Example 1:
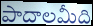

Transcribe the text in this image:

పాదాలమీది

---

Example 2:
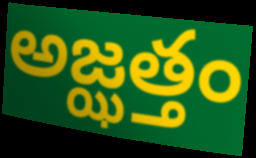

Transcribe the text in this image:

అజ్ఝత్తం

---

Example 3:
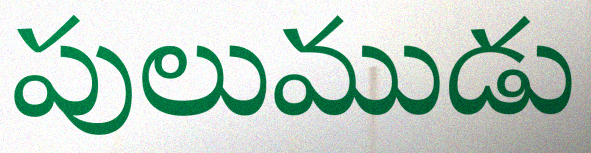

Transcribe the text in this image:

పులుముడు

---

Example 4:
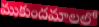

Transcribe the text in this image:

ముకుందమాలలో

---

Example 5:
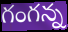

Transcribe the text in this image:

గంగన్న